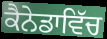
ਕੈਨੇਡਾਵਿੱਚ